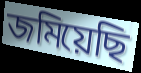
জমিয়েছি